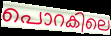
പൊറകിലെ